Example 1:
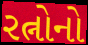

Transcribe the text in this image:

રત્નોનો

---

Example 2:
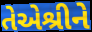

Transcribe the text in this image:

તેએશ્રીને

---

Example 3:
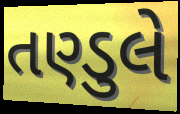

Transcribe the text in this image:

તણ્ડુલે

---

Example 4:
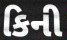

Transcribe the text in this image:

કિની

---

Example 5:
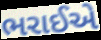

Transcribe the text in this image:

ભરાઈએ